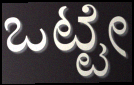
ಒಟ್ಟೇ